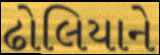
ઢોલિયાને